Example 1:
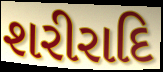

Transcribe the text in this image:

શરીરાદિ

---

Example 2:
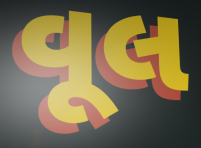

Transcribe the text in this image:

વૂલ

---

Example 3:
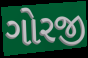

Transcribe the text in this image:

ગોરજી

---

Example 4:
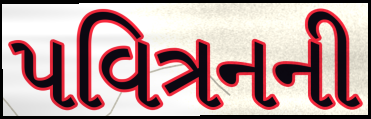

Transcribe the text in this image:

પવિત્રનની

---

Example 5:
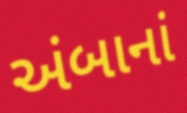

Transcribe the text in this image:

અંબાનાં